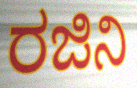
ರಜಿನಿ